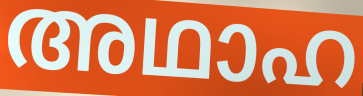
അഥാഹ